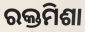
ରକ୍ତମିଶା